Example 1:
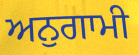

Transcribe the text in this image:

ਅਨੁਗਾਮੀ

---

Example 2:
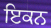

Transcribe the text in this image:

ਇਕਨ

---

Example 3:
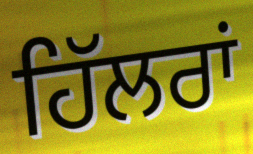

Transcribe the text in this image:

ਹਿੱਲਰਾਂ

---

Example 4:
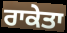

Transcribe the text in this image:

ਰਾਕੇਤਾ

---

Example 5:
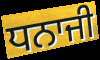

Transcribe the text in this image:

ਧਨਾਜੀ